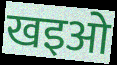
खइओ